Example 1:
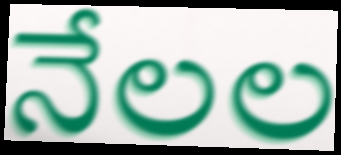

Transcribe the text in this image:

నేలల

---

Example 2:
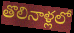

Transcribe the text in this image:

తొలినాళ్లలో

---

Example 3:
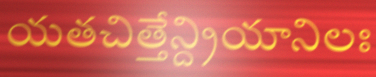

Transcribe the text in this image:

యతచిత్తేన్ద్రియానిలః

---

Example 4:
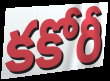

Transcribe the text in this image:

కకోరీ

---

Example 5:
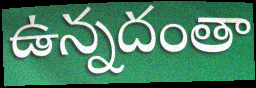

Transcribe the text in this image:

ఉన్నదంతా